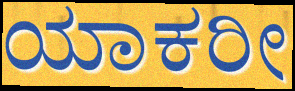
ಯಾಕರೀ